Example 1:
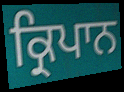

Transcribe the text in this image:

ਕ੍ਰਿਪਾਨ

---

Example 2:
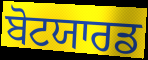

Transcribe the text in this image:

ਬੋਟਯਾਰਡ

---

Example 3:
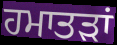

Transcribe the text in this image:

ਹਮਾਤੜਾਂ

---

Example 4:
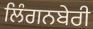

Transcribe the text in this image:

ਲਿੰਗਨਬੇਰੀ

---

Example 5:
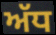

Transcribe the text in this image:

ਅੱਧ